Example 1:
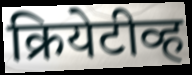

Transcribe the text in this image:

क्रियेटीव्ह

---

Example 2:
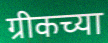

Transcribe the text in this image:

ग्रीकच्या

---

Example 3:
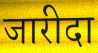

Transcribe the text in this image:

जारीदा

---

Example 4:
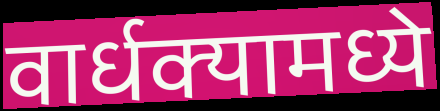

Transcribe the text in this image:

वार्धक्यामध्ये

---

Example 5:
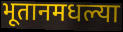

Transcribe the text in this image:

भूतानमधल्या